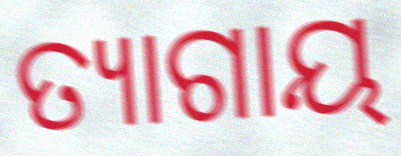
ତ୍ୟାଗାୟ